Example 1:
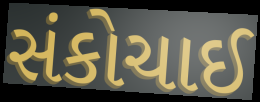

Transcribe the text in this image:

સંકોચાઈ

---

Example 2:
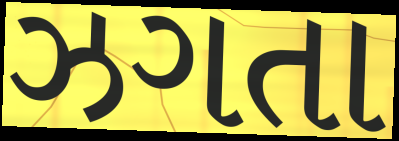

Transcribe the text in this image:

ઝગતા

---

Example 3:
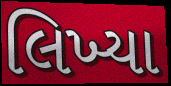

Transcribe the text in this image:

લિખ્યા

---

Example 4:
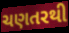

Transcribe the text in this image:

ચણતરથી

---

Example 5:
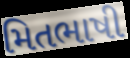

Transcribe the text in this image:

મિતભાષી